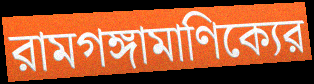
রামগঙ্গামাণিক্যের